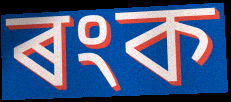
ৰংক